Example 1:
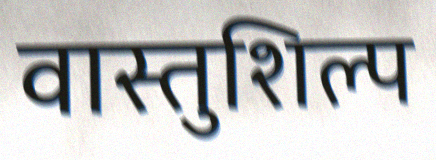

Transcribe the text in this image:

वास्तुशिल्प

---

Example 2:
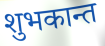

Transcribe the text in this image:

शुभकान्त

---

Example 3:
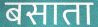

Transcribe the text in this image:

बसाता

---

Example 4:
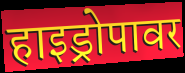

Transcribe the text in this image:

हाइड्रोपावर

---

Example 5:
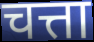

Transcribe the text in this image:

चत्ता